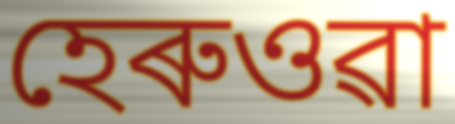
হেৰুওৱা